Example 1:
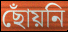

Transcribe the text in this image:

ছোঁয়নি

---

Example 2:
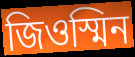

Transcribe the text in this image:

জিওস্মিন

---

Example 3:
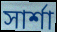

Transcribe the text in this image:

সার্শা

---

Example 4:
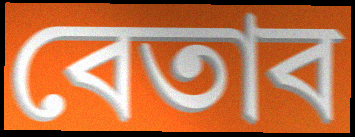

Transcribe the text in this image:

বেতাব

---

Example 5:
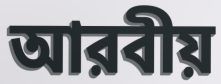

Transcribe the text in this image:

আরবীয়